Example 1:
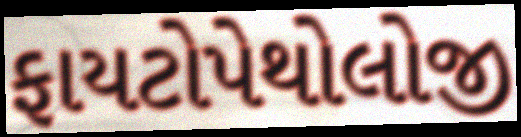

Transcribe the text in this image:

ફાયટોપેથોલોજી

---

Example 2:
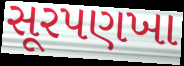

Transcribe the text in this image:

સૂરપણખા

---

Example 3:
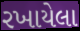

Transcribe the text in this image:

રખાયેલા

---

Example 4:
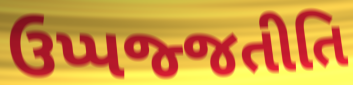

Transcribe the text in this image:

ઉપ્પજ્જતીતિ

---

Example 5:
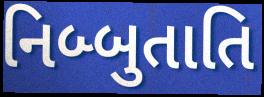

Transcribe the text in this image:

નિબ્બુતાતિ